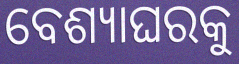
ବେଶ୍ୟାଘରକୁ